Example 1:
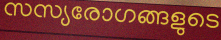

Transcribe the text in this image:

സസ്യരോഗങ്ങളുടെ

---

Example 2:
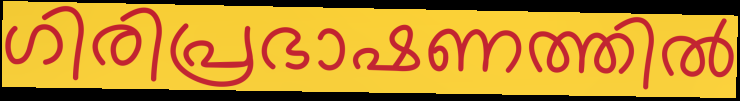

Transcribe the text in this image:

ഗിരിപ്രഭാഷണത്തിൽ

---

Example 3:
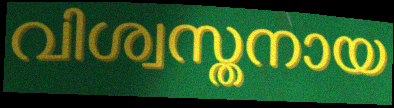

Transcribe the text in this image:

വിശ്വസ്തനായ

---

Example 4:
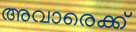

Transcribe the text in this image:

അവാരെക്ക്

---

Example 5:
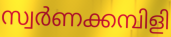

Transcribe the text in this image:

സ്വർണക്കമ്പിളി